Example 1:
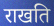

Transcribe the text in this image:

राखति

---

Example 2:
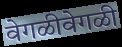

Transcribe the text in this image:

वेगळीवेगळी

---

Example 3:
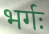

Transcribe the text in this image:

भर्गः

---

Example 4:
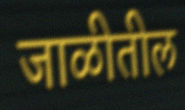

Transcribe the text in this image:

जाळीतील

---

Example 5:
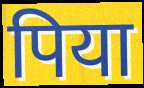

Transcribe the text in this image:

पिया